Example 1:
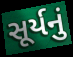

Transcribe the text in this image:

સૂર્યનું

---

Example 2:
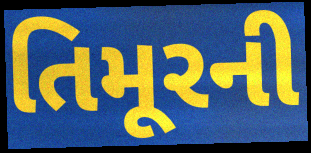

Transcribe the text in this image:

તિમૂરની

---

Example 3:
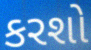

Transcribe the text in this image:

કરશો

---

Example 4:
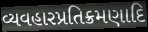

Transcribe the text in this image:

વ્યવહારપ્રતિક્રમણાદિ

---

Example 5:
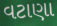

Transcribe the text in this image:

વટાણા